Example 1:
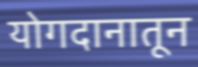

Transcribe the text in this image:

योगदानातून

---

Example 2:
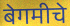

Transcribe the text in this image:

बेगमीचे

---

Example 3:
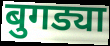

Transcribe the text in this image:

बुगड्या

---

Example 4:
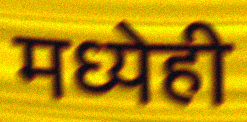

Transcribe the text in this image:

मध्येही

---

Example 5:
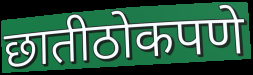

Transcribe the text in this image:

छातीठोकपणे